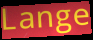
Lange